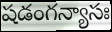
షడంగన్యాసః